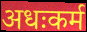
अधःकर्म